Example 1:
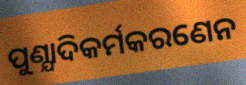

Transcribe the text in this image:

ପୁଣ୍ଯାଦିକର୍ମକରଣେନ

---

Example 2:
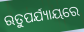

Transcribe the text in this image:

ଋତୁପର୍ଯ୍ୟାୟରେ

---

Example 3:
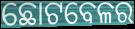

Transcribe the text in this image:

ଛୋଟବେଳର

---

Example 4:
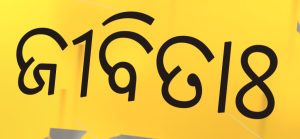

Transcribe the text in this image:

ଜୀବିତାଃ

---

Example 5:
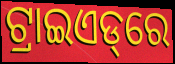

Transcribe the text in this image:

ଟ୍ରାଇଏଡ୍‌ରେ